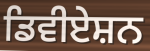
ਡਿਵੀਏਸ਼ਨ